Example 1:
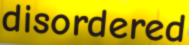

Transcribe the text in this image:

disordered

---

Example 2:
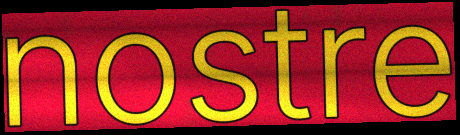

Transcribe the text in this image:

nostre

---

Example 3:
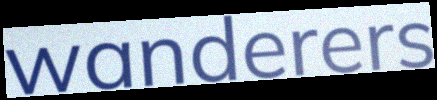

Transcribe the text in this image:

wanderers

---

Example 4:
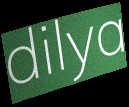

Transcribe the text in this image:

dilya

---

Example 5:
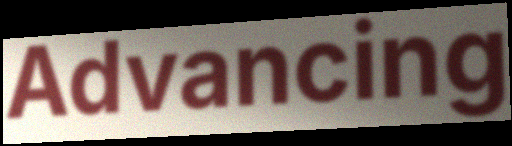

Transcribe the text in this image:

Advancing